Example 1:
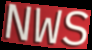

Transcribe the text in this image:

NWS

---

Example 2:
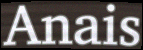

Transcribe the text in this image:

Anais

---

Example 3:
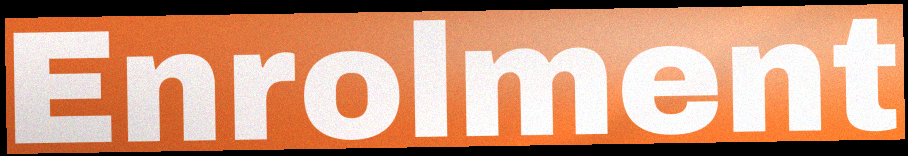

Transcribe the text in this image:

Enrolment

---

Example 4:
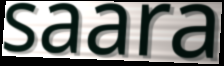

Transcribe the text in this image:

saara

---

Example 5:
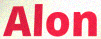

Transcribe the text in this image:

Alon